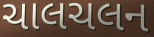
ચાલચલન